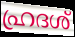
ഹ്രദശ്